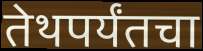
तेथपर्यंतचा